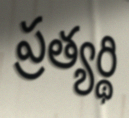
ప్రత్యర్థి